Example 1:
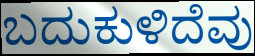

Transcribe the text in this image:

ಬದುಕುಳಿದೆವು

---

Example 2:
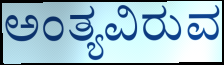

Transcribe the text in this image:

ಅಂತ್ಯವಿರುವ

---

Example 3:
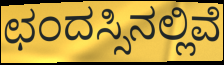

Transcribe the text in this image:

ಛಂದಸ್ಸಿನಲ್ಲಿವೆ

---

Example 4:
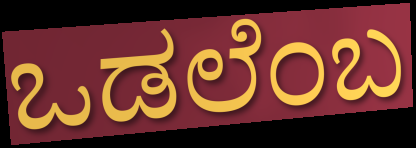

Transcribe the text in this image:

ಒಡಲೆಂಬ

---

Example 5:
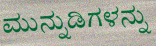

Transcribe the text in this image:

ಮುನ್ನುಡಿಗಳನ್ನು